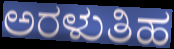
ಅರಳುತಿಹ